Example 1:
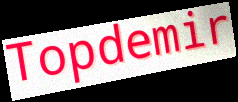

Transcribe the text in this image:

Topdemir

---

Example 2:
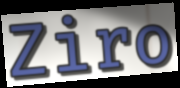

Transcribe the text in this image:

Ziro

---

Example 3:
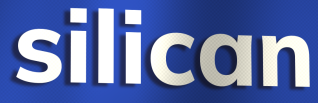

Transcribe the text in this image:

silican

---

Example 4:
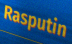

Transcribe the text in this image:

Rasputin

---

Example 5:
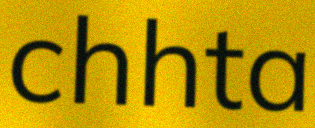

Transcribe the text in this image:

chhta